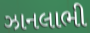
ઝાનલાભી